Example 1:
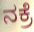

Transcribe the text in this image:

ನಕ್ರೆ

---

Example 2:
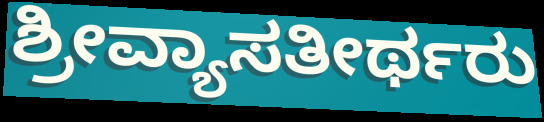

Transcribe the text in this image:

ಶ್ರೀವ್ಯಾಸತೀರ್ಥರು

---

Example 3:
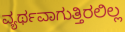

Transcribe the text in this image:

ವ್ಯರ್ಥವಾಗುತ್ತಿರಲಿಲ್ಲ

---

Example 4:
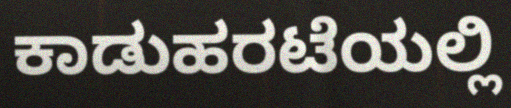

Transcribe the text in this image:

ಕಾಡುಹರಟೆಯಲ್ಲಿ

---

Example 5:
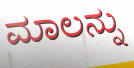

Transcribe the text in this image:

ಮಾಲನ್ನು